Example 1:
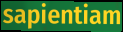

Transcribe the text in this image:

sapientiam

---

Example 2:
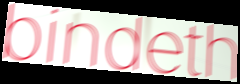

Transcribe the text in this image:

bindeth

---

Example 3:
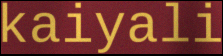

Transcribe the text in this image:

kaiyali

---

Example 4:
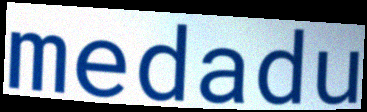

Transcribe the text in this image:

medadu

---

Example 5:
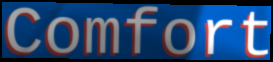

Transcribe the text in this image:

Comfort